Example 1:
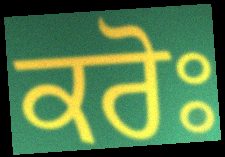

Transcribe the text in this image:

ਕਰੋਃ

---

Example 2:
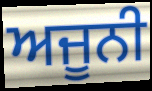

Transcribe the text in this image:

ਅਜੂਨੀ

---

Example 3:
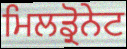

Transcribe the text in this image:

ਮਿਲਡ੍ਰੋਨੇਟ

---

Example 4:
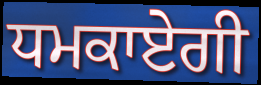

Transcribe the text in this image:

ਧਮਕਾਏਗੀ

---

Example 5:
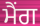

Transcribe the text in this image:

ਮੈਂਗ